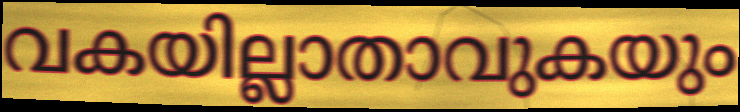
വകയില്ലാതാവുകയും